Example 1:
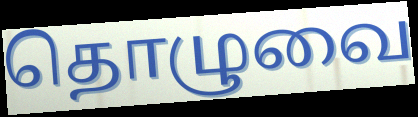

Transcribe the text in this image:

தொழுவை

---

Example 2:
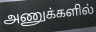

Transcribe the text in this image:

அணுக்களில்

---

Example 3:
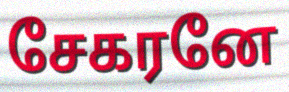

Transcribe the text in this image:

சேகரனே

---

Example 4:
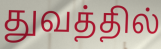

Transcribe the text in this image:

துவத்தில்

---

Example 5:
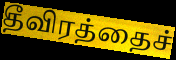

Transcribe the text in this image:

தீவிரத்தைச்